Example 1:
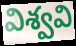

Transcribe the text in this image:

విశ్వవి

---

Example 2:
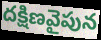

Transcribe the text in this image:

దక్షిణవైపున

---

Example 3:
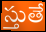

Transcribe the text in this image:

స్తుతే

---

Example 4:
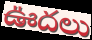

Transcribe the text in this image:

ఊదలు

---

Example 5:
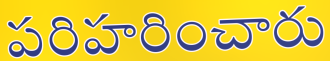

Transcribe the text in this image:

పరిహరించారు